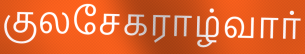
குலசேகராழ்வார்